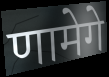
णामेगे